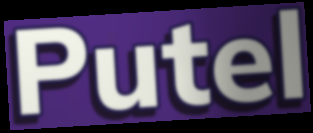
Putel